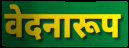
वेदनारूप